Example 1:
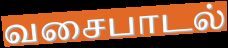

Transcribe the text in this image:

வசைபாடல்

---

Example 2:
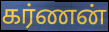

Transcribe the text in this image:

கர்ணன்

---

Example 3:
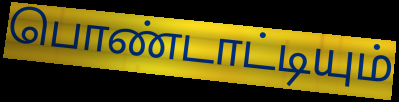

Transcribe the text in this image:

பொண்டாட்டியும்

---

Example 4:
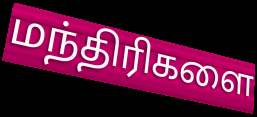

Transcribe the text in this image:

மந்திரிகளை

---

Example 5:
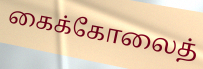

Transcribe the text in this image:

கைக்கோலைத்